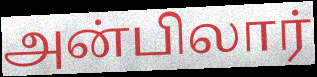
அன்பிலார்